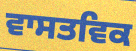
ਵਾਸਤਵਿਕ